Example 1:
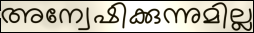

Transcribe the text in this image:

അന്വേഷിക്കുന്നുമില്ല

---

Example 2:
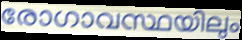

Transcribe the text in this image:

രോഗാവസ്ഥയിലും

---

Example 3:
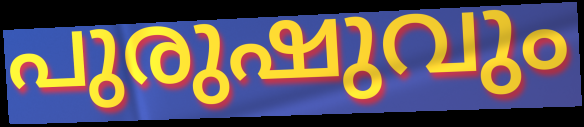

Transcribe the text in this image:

പുരുഷുവും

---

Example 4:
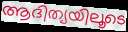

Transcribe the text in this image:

ആദിത്യയിലൂടെ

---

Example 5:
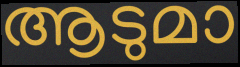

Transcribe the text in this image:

ആടുമാ